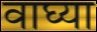
वाघ्या